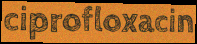
ciprofloxacin